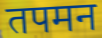
तपमन